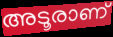
അടൂരാണ്